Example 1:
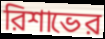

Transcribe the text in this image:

রিশাভের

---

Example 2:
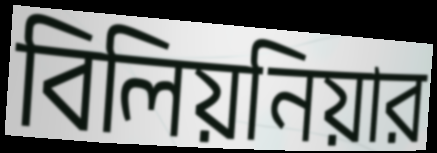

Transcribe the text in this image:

বিলিয়নিয়ার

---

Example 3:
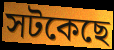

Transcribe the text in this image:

সটকেছে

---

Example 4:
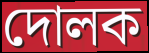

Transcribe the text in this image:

দোলক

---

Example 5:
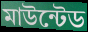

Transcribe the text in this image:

মাউন্টেড